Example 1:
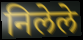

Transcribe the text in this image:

निलेले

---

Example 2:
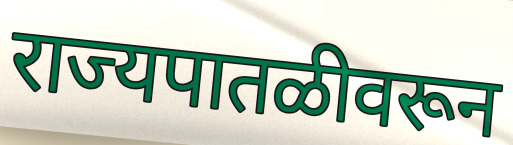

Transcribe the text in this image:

राज्यपातळीवरून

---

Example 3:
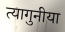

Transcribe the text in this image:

त्यागुनीया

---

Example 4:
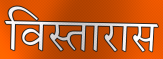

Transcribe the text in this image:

विस्तारास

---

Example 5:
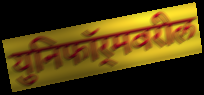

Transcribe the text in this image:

युनिफॉर्मवरील